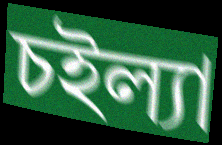
চইল্যা